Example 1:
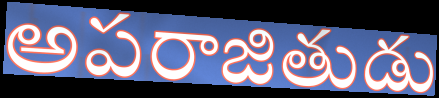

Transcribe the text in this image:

అపరాజితుడు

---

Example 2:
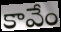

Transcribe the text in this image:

కావేం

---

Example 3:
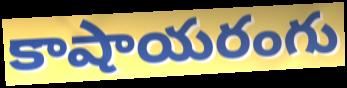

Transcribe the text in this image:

కాషాయరంగు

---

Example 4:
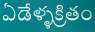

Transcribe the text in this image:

ఏడేళ్ళక్రితం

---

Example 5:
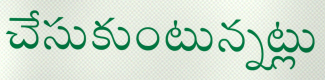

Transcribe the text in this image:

చేసుకుంటున్నట్లు